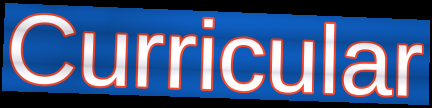
Curricular